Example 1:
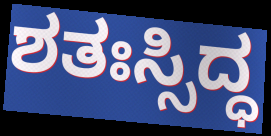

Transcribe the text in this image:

ಶತಃಸ್ಸಿದ್ಧ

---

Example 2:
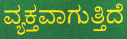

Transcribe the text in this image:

ವ್ಯಕ್ತವಾಗುತ್ತಿದೆ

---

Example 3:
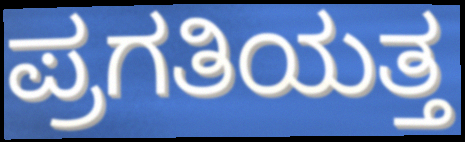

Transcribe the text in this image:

ಪ್ರಗತಿಯತ್ತ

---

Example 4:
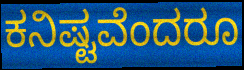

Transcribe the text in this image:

ಕನಿಷ್ಟವೆಂದರೂ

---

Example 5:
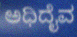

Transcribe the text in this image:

ಅಧಿದೈವ